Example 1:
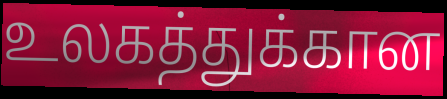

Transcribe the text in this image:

உலகத்துக்கான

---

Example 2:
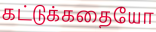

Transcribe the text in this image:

கட்டுக்கதையோ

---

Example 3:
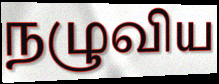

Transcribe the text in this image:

நழுவிய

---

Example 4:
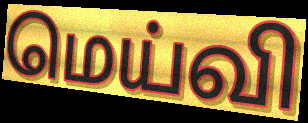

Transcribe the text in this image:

மெய்வி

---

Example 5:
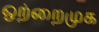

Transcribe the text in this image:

ஒற்றைமுக